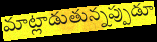
మాట్లాడుతున్నప్పుడూ